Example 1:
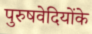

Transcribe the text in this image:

पुरुषवेदियोंके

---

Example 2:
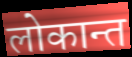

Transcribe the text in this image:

लोकान्त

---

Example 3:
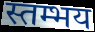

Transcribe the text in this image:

स्तम्भय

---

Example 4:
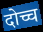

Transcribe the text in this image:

दोच्च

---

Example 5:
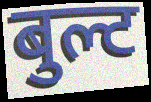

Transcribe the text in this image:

बुल्ट